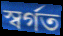
স্বর্গত